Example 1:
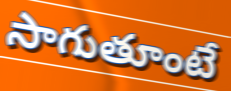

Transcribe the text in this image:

సాగుతూంటే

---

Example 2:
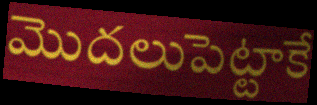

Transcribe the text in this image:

మొదలుపెట్టాకే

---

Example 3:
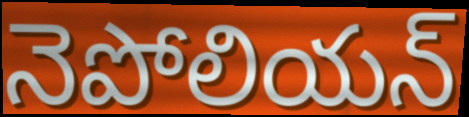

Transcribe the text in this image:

నెపోలియన్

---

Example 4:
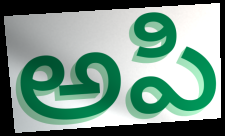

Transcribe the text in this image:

అపి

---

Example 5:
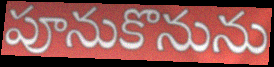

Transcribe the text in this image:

పూనుకొనును